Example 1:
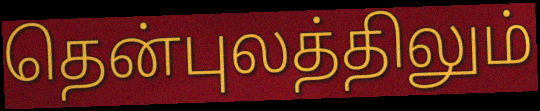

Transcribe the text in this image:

தென்புலத்திலும்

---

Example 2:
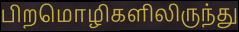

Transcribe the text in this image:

பிறமொழிகளிலிருந்து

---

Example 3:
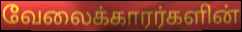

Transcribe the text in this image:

வேலைக்காரர்களின்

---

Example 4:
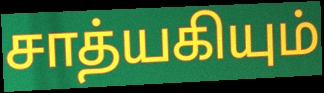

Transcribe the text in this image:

சாத்யகியும்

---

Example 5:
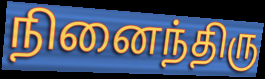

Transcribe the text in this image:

நினைந்திரு